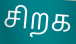
சிறக